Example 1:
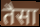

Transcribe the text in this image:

तैसा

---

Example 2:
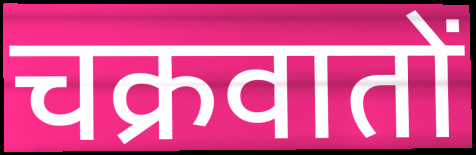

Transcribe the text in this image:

चक्रवातों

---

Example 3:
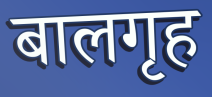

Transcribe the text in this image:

बालगृह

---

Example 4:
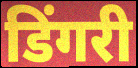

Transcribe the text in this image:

डिंगरी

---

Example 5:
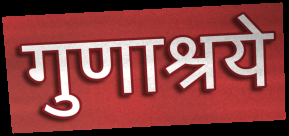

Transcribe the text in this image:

गुणाश्रये